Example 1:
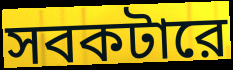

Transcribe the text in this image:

সবকটারে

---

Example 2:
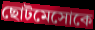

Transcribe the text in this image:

ছোটমেসোকে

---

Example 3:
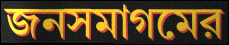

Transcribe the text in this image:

জনসমাগমের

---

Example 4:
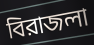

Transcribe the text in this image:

বিরাজলা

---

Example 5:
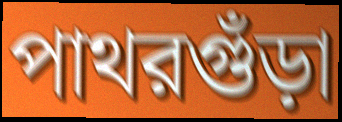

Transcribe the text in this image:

পাথরগুঁড়া